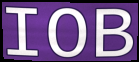
IOB